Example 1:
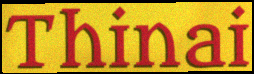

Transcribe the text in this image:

Thinai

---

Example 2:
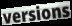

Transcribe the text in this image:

versions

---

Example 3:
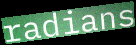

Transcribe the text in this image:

radians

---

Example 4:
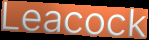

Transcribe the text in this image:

Leacock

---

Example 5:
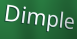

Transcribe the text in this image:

Dimple